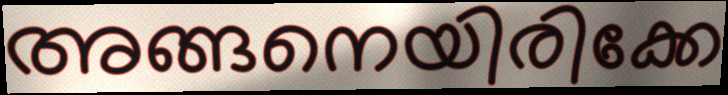
അങ്ങനെയിരിക്കേ